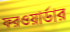
ফরওয়ার্ডার